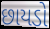
છાયડો